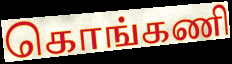
கொங்கணி